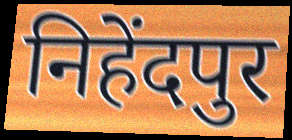
निहेंदपुर